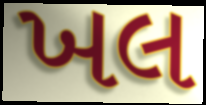
ખલ